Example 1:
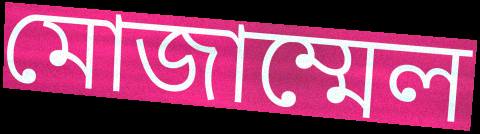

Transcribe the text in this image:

মোজাম্মেল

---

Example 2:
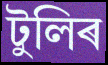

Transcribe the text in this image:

টুলিৰ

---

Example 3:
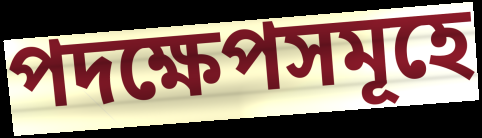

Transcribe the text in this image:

পদক্ষেপসমূহে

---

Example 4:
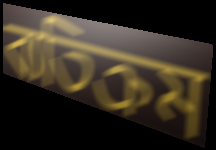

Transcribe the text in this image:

ব্যতিক্ৰম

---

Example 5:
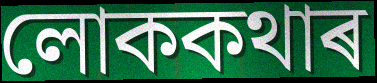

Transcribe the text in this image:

লোককথাৰ